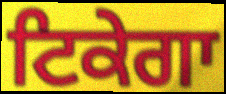
ਟਿਕੇਗਾ